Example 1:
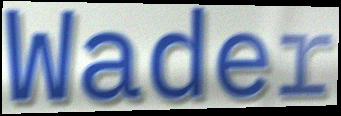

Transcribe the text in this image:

Wader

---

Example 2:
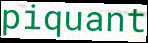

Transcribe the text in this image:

piquant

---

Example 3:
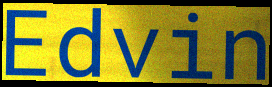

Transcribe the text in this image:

Edvin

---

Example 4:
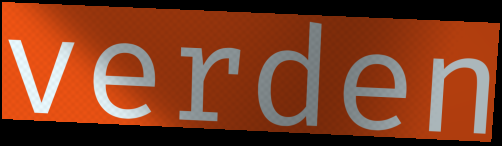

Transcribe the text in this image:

verden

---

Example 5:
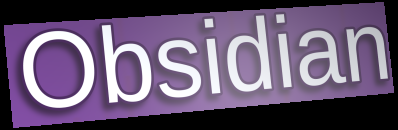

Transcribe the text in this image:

Obsidian